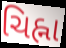
ચિહ્ના